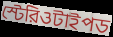
স্টেরিওটাইপড